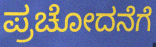
ಪ್ರಚೋದನೆಗೆ